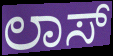
ಲಾಸ್